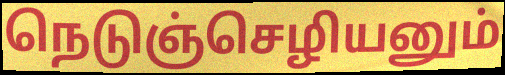
நெடுஞ்செழியனும்